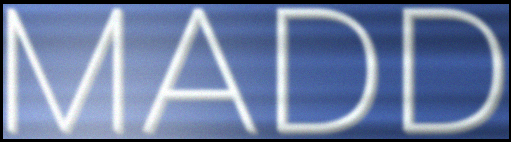
MADD